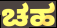
ಚಹ